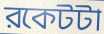
রকেটটা